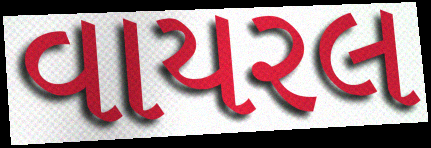
વાયરલ